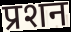
प्रशन